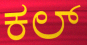
ಕಲ್